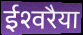
ईश्वरैया